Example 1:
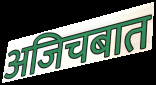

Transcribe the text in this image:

अजिचबात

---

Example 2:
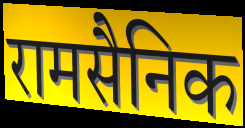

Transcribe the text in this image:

रामसैनिक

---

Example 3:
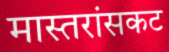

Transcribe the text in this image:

मास्तरांसकट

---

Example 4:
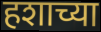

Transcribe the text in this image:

हशाच्या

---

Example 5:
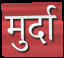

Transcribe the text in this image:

मुर्दा